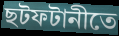
ছটফটানীতে